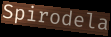
Spirodela